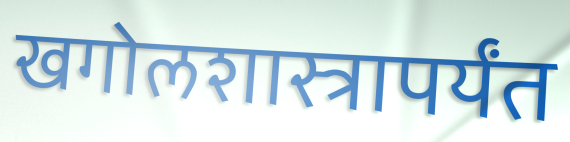
खगोलशास्त्रापर्यंत